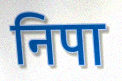
निपा